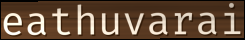
eathuvarai